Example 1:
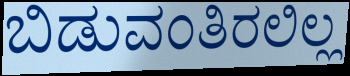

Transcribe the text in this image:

ಬಿಡುವಂತಿರಲಿಲ್ಲ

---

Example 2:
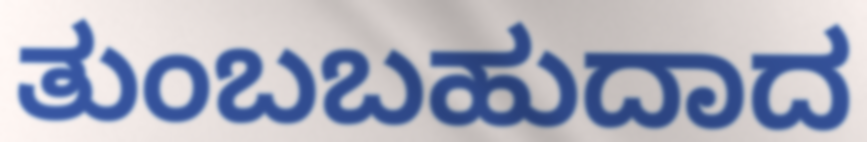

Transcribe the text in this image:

ತುಂಬಬಹುದಾದ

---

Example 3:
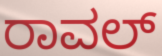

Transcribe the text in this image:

ರಾವಲ್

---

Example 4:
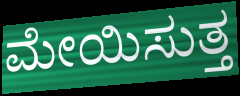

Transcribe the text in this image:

ಮೇಯಿಸುತ್ತ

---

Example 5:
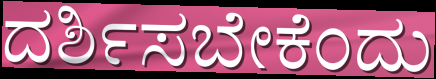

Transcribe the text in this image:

ದರ್ಶಿಸಬೇಕೆಂದು